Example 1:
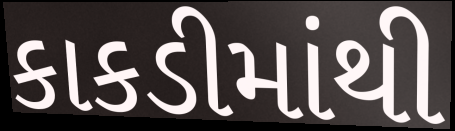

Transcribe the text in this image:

કાકડીમાંથી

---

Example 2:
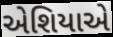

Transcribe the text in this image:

એશિયાએ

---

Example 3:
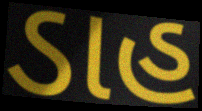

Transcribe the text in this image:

ડાહ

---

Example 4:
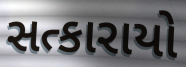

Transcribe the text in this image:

સત્કારાયો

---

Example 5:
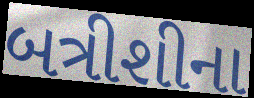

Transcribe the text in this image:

બત્રીશીના